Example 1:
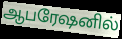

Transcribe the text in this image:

ஆபரேஷனில்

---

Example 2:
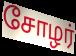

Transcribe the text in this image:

சோழர்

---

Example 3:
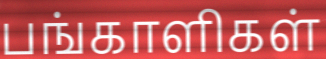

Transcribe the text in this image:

பங்காளிகள்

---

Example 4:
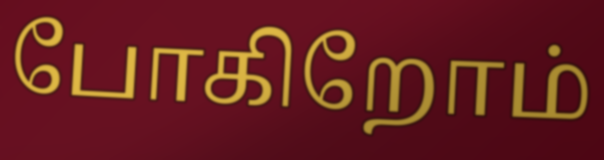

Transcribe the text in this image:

போகிறோம்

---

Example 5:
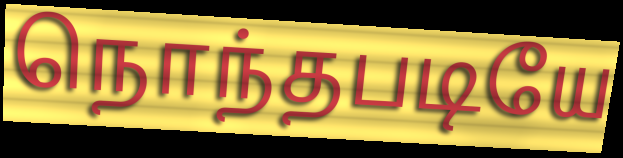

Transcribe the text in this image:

நொந்தபடியே